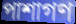
পাশাগণ